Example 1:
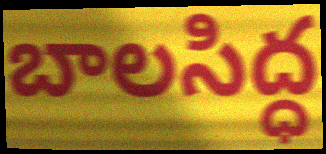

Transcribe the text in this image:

బాలసిద్ధ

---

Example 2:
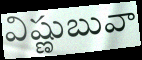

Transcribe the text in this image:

విష్ణుబువా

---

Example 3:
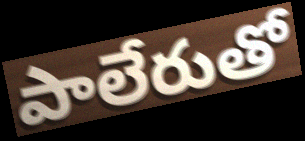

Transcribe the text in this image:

పాలేరుతో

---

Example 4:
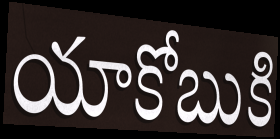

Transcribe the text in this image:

యాకోబుకి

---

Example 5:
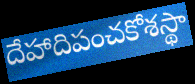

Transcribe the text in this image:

దేహాదిపంచకోశస్థా